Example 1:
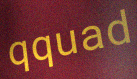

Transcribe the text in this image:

qquad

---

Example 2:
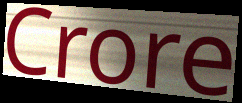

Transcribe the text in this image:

Crore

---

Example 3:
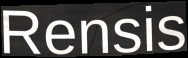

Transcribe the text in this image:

Rensis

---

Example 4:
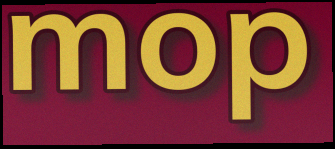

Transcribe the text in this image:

mop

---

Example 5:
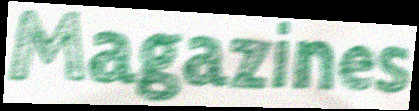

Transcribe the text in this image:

Magazines